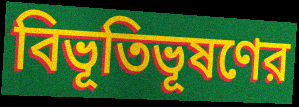
বিভূতিভূষণের